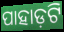
ପାହାଡ଼ଟି